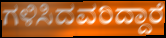
ಗಳಿಸಿದವರಿದ್ದಾರೆ